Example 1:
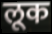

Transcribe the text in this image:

लूक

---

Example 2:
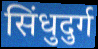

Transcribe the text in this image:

सिंधुदुर्ग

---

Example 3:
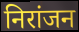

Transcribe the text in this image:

निरांजन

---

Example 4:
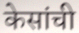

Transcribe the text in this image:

केसांची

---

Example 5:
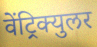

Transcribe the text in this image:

वेंट्रिक्युलर